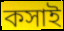
কসাই